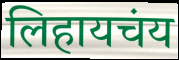
लिहायचंय